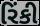
રિંકી